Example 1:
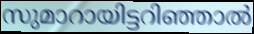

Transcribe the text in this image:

സുമാറായിട്ടറിഞ്ഞാൽ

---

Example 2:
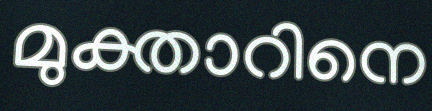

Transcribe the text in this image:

മുക്താറിനെ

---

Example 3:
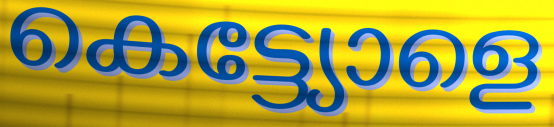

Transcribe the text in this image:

കെട്ട്യോളെ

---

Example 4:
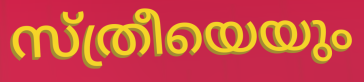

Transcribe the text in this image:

സ്ത്രീയെയും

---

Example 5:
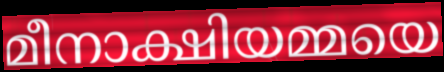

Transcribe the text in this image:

മീനാക്ഷിയമ്മയെ